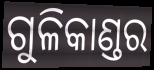
ଗୁଳିକାଣ୍ଡର